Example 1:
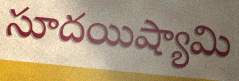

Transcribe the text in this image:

సూదయిష్యామి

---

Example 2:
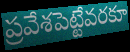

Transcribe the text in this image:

ప్రవేశపెట్టేవరకూ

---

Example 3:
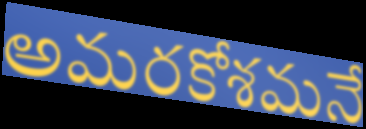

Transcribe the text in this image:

అమరకోశమనే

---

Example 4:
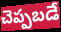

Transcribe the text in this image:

చెప్పబడే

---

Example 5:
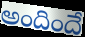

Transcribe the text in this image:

అందిందే